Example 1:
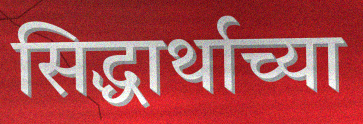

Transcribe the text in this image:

सिद्धार्थाच्या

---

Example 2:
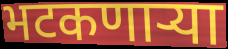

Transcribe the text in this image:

भटकणार्‍या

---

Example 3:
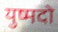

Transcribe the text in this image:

युष्मदो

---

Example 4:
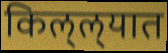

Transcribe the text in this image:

किल्ल्यात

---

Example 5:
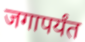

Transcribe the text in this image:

जगापर्यंत